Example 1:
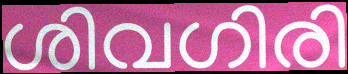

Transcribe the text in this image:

ശിവഗിരി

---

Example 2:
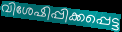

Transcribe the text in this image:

വിശേഷിപ്പിക്കപ്പെട്ട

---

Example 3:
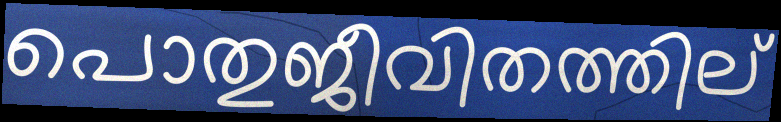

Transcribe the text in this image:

പൊതുജീവിതത്തില്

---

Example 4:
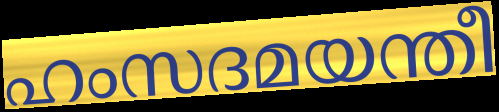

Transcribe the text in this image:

ഹംസദമയന്തീ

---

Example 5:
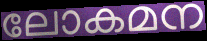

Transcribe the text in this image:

ലോകമന